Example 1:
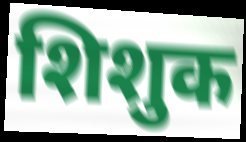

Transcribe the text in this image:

शिशुक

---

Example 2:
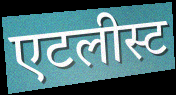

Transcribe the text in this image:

एटलीस्ट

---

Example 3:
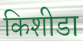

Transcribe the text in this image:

किशीडा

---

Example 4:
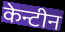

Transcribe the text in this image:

केन्टीन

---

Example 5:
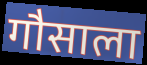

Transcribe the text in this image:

गौसाला